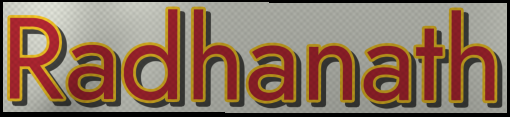
Radhanath